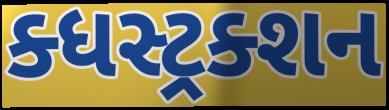
ક્ધસ્ટ્રક્શન